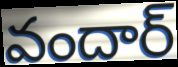
వందార్